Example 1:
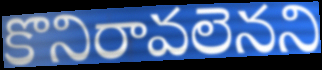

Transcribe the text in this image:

కొనిరావలెనని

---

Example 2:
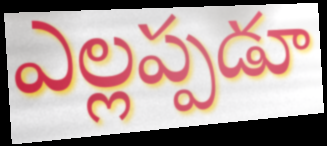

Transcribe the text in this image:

ఎల్లప్పడూ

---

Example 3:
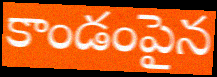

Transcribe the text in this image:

కాండంపైన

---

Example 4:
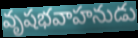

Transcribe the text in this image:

వృషభవాహనుడు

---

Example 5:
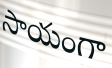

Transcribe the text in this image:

సాయంగా